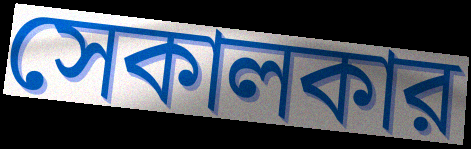
সেকালকার